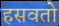
हसवतो